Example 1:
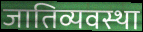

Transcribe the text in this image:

जातिव्यवस्था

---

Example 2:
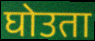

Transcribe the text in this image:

घोउता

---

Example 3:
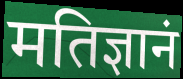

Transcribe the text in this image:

मतिज्ञानं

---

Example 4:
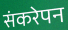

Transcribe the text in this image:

संकरेपन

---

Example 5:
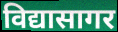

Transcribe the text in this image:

विद्यासागर